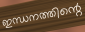
ഇന്ധനത്തിന്റെ